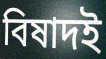
বিষাদই